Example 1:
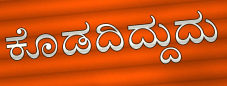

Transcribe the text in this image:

ಕೊಡದಿದ್ದುದು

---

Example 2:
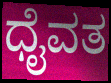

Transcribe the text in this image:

ಧೈವತ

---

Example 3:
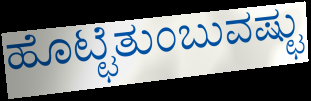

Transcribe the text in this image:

ಹೊಟ್ಟೆತುಂಬುವಷ್ಟು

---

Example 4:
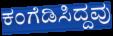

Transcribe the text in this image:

ಕಂಗೆಡಿಸಿದ್ದವು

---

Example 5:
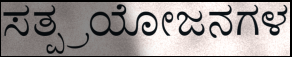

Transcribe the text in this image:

ಸತ್ಪ್ರಯೋಜನಗಳ